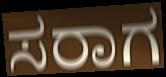
ಸರಾಗ